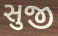
સુજી